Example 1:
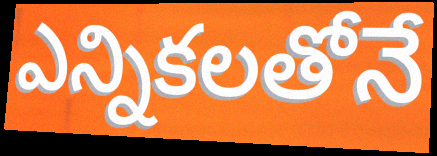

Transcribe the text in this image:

ఎన్నికలతోనే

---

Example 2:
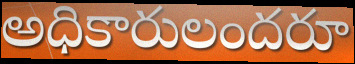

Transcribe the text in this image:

అధికారులందరూ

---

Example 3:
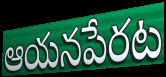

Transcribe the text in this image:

ఆయనపేరట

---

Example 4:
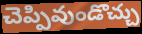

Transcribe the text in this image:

చెప్పివుండొచ్చు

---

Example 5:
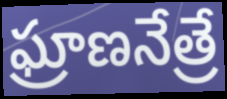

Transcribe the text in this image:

ఘ్రాణనేత్రే